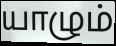
யாழும்